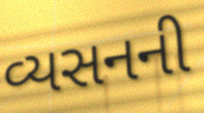
વ્યસનની